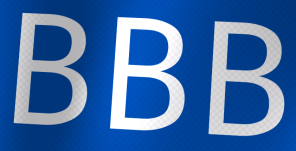
BBB